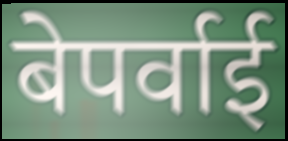
बेपर्वाई